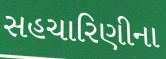
સહચારિણીના